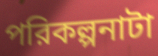
পরিকল্পনাটা